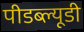
पीडब्ल्यूडी